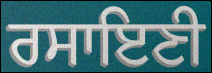
ਰਸਾਇਣੀ